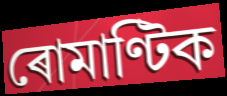
ৰোমাণ্টিক